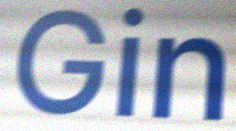
Gin